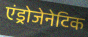
एंड्रोजेनेटिक